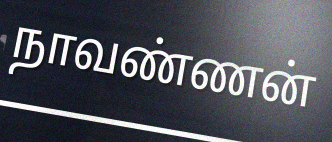
நாவண்ணன்